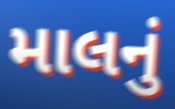
માલનું